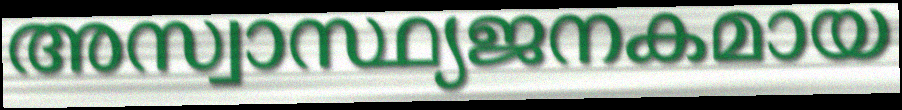
അസ്വാസ്ഥ്യജനകമായ